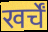
खर्चें